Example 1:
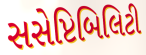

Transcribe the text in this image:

સસેપ્ટિબિલિટી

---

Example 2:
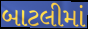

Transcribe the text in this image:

બાટલીમાં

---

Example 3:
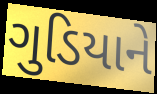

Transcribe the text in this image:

ગુડિયાને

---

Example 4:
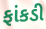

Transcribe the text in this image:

ફાંકડી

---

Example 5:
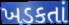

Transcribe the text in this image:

ખડકતાં